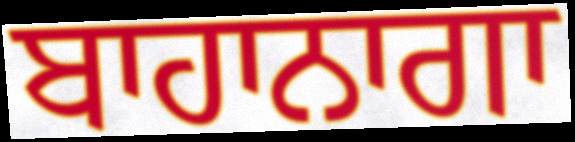
ਬਾਹਾਨਾਗਾ